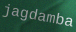
jagdamba